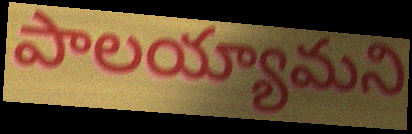
పాలయ్యామని